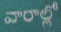
వారాల్లో